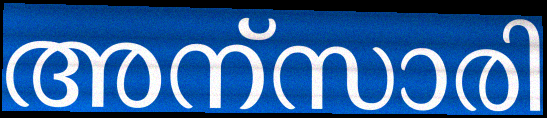
അന്സാരി